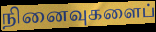
நினைவுகளைப்